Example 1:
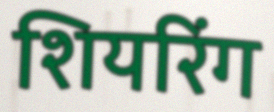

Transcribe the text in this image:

शियरिंग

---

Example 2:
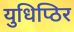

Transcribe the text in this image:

युधिप्ठिर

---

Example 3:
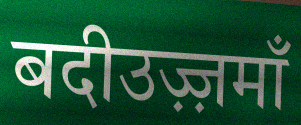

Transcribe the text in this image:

बदीउज़्ज़माँ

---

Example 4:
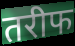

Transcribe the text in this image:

तरीफ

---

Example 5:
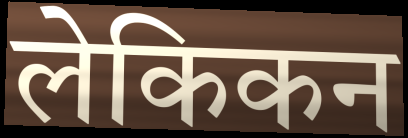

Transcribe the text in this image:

लेकिकन